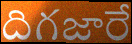
దిగజారే